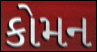
કોમન